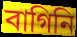
বাগিনি